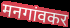
मनगांवकर